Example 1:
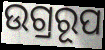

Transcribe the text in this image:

ଉଗ୍ରରୂପ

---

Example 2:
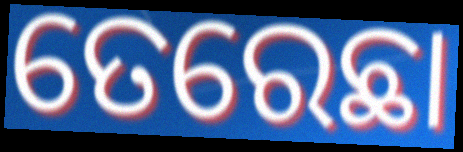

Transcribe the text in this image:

ତେରେଛା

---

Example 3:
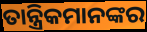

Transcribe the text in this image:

ତାନ୍ତ୍ରିକମାନଙ୍କର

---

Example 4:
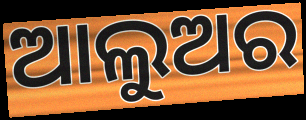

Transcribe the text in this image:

ଆଲୁଅର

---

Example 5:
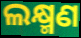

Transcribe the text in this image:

ଲକ୍ଷ୍ମଣ